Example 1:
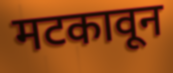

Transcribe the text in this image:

मटकावून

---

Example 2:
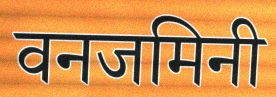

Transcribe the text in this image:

वनजमिनी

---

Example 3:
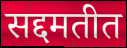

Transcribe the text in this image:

सद्दमतीत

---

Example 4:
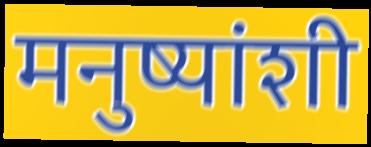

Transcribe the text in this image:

मनुष्यांशी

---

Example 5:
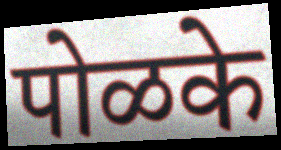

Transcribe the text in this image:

पोळके